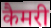
कैमरी